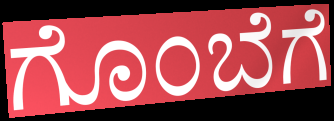
ಗೊಂಬೆಗೆ